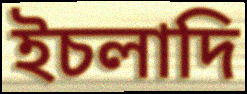
ইচলাদি